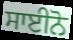
ਸਾਈਨੋ